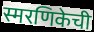
स्मरणिकेची